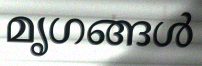
മൃഗങ്ങൾ